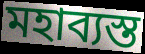
মহাব্যস্ত